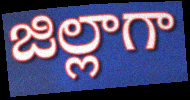
జిల్లాగా